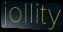
jollity